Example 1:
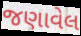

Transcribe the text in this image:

જણાવેલ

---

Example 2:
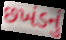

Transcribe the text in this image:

છખંડનું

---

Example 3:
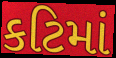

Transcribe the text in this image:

કટિમાં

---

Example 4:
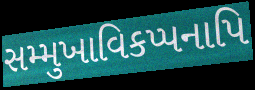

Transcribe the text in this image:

સમ્મુખાવિકપ્પનાપિ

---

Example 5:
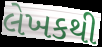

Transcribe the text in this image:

લેખકથી